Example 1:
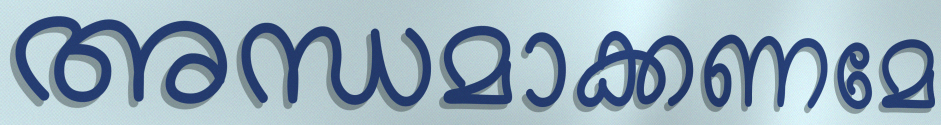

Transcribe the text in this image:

അന്ധമാക്കണമേ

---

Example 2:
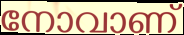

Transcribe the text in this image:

നോവാണ്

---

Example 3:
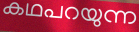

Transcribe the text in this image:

കഥപറയുന്ന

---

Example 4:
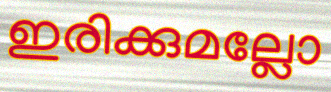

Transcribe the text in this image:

ഇരിക്കുമല്ലോ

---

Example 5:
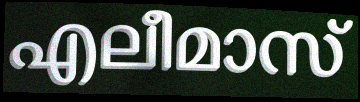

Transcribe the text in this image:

എലീമാസ്